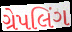
ગ્રેપલિંગ